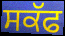
ਸਕੱਫ